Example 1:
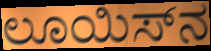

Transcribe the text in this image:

ಲೂಯಿಸ್‌ನ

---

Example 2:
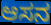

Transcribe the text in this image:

ಆಸನ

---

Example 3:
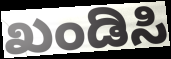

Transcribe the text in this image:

ಖಂಡಿಸಿ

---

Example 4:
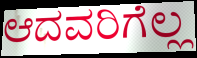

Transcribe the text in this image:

ಆದವರಿಗೆಲ್ಲ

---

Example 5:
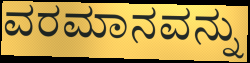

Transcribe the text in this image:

ವರಮಾನವನ್ನು